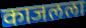
काजलला